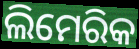
ଲିମେରିକ